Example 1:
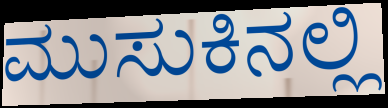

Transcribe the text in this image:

ಮುಸುಕಿನಲ್ಲಿ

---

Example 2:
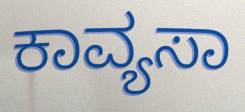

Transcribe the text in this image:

ಕಾವ್ಯಸಾ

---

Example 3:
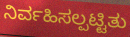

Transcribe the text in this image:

ನಿರ್ವಹಿಸಲ್ಪಟ್ಟಿತು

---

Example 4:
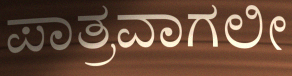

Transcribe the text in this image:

ಪಾತ್ರವಾಗಲೀ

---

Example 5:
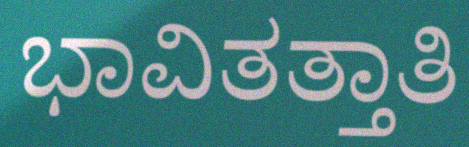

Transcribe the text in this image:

ಭಾವಿತತ್ತಾತಿ